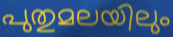
പുതുമലയിലും